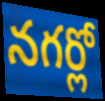
నగర్లో